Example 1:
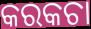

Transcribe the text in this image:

କରକଚା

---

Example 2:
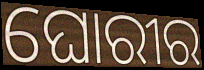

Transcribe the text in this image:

ଘୋରୀର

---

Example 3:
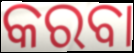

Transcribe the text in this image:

କରବା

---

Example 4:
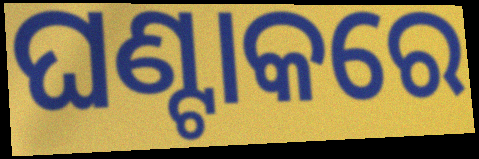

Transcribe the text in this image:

ଘଣ୍ଟାକରେ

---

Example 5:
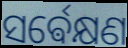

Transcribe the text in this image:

ସର୍ଵେକ୍ଷଣ